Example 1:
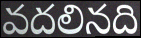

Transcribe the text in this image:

వదలినది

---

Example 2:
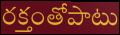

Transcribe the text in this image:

రక్తంతోపాటు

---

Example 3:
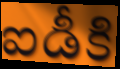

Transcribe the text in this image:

ఐడీకి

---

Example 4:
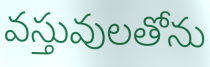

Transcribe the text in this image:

వస్తువులతోను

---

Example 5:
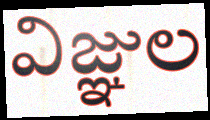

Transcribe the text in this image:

విజ్ఞుల